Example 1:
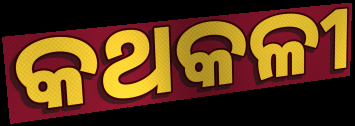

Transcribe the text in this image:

କଥକଳୀ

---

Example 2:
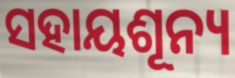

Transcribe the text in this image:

ସହାୟଶୂନ୍ୟ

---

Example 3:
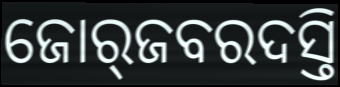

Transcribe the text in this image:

ଜୋର୍‍ଜବରଦସ୍ତି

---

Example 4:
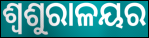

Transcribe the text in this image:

ଶ୍ୱଶୁରାଳୟର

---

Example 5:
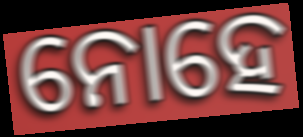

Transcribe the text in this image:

ନୋହେ